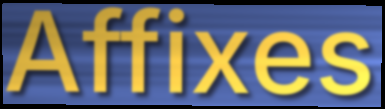
Affixes